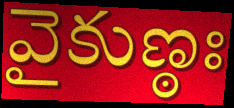
వైకుణ్ఠః